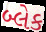
બ્લેક